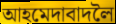
আহমেদাবাদলৈ